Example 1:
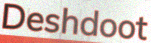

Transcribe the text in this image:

Deshdoot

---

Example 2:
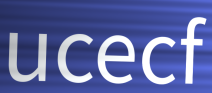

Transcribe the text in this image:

ucecf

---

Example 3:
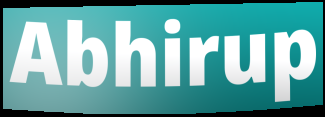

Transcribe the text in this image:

Abhirup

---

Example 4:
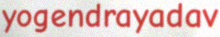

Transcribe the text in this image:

yogendrayadav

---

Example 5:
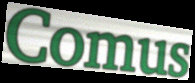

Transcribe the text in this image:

Comus